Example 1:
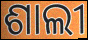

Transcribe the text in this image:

ଶାଲୀ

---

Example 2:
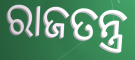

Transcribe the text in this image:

ରାଜତନ୍ତ୍ର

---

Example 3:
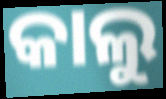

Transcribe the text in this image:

କାଲୁ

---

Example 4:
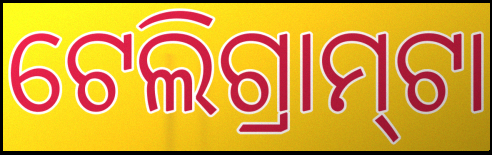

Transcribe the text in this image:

ଟେଲିଗ୍ରାମ୍‍ଟା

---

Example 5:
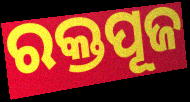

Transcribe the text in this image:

ରକ୍ତପୂଜ